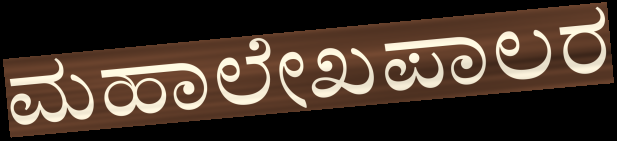
ಮಹಾಲೇಖಪಾಲರ